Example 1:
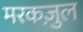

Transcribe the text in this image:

मरकज़ुल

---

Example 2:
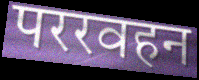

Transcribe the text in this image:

पररवहन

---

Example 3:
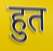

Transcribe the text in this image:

हुत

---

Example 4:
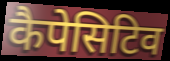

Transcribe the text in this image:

कैपेसिटिव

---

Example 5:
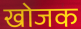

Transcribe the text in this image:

खोजक